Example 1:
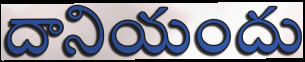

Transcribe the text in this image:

దానియందు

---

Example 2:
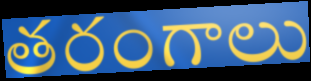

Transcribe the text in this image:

తరంగాలు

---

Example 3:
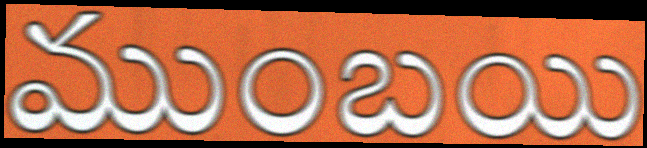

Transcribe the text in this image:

ముంబయి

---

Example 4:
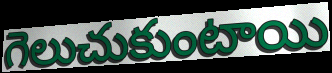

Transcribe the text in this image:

గెలుచుకుంటాయి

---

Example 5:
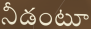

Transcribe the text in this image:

నీడంటూ